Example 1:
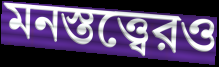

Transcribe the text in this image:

মনস্তত্ত্বেরও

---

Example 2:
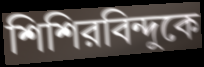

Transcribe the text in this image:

শিশিরবিন্দুকে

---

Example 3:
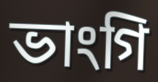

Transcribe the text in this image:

ভাংগি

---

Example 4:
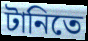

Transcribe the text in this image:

টানিতে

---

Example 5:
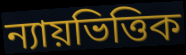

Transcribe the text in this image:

ন্যায়ভিত্তিক